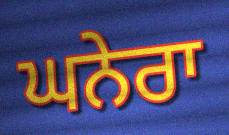
ਘਨੇਰਾ